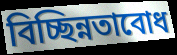
বিচ্ছিন্নতাবোধ